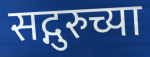
सद्गुरुच्या